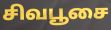
சிவபூசை